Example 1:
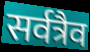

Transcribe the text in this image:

सर्वत्रैव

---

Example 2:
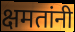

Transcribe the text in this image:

क्षमतांनी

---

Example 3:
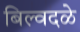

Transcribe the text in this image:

बिल्वदळे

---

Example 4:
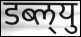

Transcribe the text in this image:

डब्ल्यु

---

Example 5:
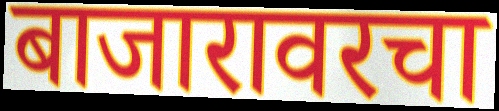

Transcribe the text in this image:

बाजारावरचा